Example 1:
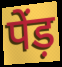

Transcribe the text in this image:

पेंड़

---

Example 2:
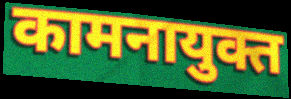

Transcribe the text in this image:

कामनायुक्त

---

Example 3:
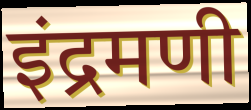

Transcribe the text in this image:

इंद्रमणी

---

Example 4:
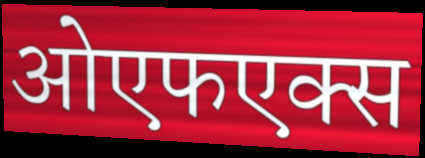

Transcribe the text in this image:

ओएफएक्स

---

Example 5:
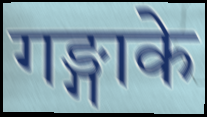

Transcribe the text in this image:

गङ्गाके